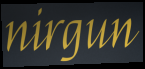
nirgun